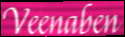
Veenaben